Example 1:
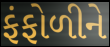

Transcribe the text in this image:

ફંફોળીને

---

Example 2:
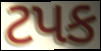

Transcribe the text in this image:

ટપક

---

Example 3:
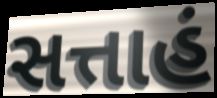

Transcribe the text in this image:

સત્તાહં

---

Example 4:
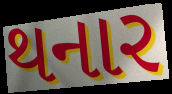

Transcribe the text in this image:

થનાર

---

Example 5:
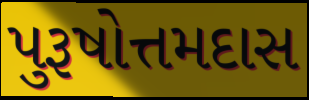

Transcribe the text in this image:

પુરૂષોત્તમદાસ